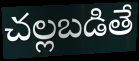
చల్లబడితే